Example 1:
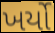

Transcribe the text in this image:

ખર્યો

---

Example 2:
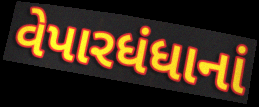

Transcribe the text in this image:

વેપારધંધાનાં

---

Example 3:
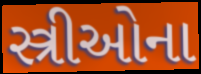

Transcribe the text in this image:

સ્ત્રીઓના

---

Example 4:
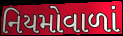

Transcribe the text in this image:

નિયમોવાળાં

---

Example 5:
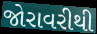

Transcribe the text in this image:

જોરાવરીથી